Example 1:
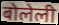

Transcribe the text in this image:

बोलेली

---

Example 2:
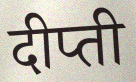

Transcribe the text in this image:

दीप्ती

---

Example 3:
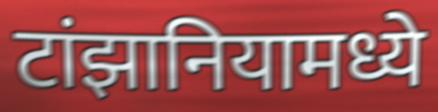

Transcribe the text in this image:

टांझानियामध्ये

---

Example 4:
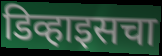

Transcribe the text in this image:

डिव्हाइसचा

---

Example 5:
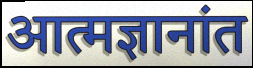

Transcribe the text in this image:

आत्मज्ञानांत